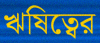
ঋষিত্বের